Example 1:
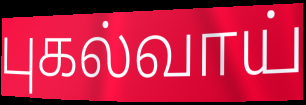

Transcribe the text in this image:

புகல்வாய்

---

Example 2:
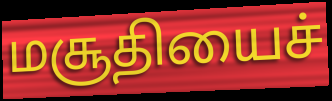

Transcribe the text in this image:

மசூதியைச்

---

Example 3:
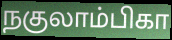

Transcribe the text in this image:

நகுலாம்பிகா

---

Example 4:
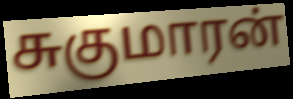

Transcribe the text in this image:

சுகுமாரன்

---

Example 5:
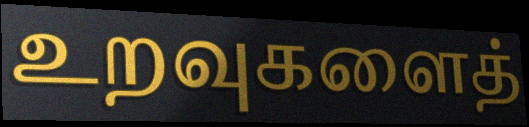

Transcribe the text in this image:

உறவுகளைத்